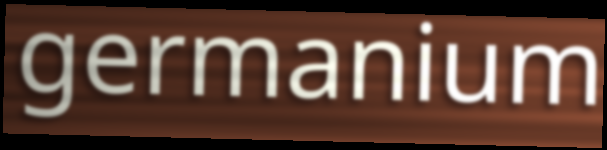
germanium